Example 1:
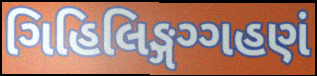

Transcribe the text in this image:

ગિહિલિઙ્ગગ્ગહણં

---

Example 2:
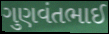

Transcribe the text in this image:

ગુણવંતભાઈ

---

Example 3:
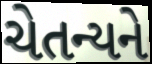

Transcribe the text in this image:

ચેતન્યને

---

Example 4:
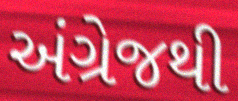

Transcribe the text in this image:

અંગ્રેજથી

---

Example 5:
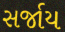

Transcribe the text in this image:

સર્જાય